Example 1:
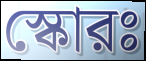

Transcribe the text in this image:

স্কোরঃ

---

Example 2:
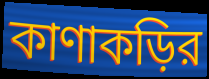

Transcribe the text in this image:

কাণাকড়ির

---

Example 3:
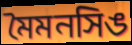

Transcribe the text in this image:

মৈমনসিঙ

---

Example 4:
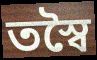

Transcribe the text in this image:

তস্বৈ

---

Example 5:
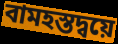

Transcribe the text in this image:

বামহস্তদ্বয়ে